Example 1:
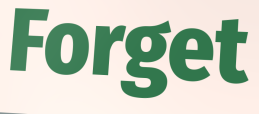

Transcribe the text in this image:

Forget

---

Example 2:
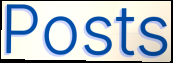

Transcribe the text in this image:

Posts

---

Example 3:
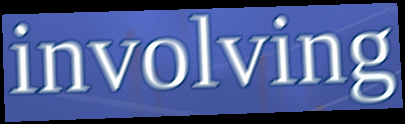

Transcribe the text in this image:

involving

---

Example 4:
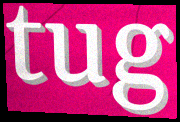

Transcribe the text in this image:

tug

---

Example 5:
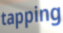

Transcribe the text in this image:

tapping